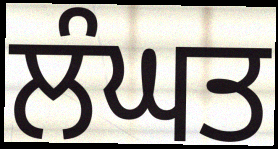
ਲੰਘਤ